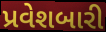
પ્રવેશબારી